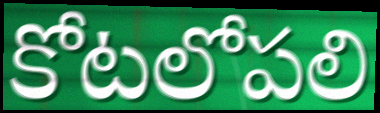
కోటలోపలి